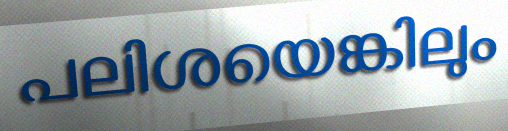
പലിശയെങ്കിലും